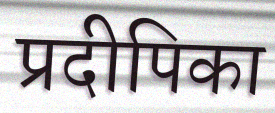
प्रदीपिका